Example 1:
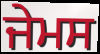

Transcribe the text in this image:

ਜੇਮਸ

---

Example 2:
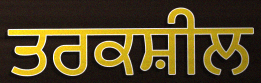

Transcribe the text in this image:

ਤਰਕਸ਼ੀਲ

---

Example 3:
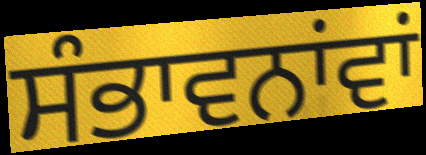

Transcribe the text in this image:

ਸੰਭਾਵਨਾਂਵਾਂ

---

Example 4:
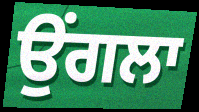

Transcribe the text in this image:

ਉਂਗਲਾ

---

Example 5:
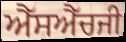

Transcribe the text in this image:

ਐੱਸਐੱਚਜੀ